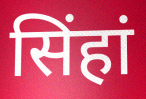
सिंहां